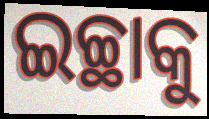
ଇଚ୍ଛାକୁ